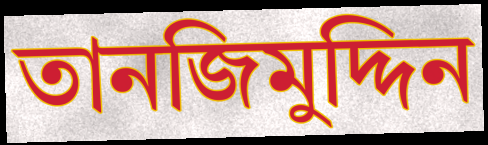
তানজিমুদ্দিন